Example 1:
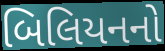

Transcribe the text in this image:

બિલિયનનો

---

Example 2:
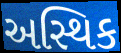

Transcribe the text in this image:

અસ્થિક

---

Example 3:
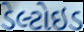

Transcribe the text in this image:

ડેલ્ટોઇડ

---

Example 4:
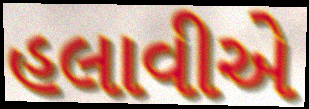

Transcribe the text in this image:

હલાવીએ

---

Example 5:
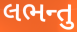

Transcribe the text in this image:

લભન્તુ